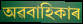
অৱবাহিকাৰ